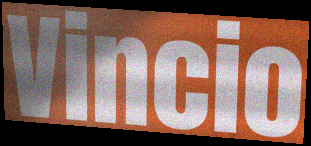
Vincio